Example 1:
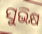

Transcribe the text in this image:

ସୁଭିକ୍ଷ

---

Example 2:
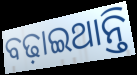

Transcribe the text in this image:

ବଢ଼ାଇଥାନ୍ତି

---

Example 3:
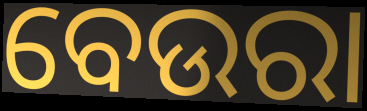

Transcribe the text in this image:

ବେଉରା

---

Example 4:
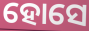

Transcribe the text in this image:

ହୋସେ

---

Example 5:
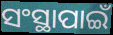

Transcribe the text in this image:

ସଂସ୍ଥାପାଇଁ